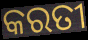
କରତୀ